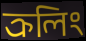
ক্রলিং